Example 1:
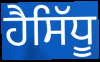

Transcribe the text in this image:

ਹੈਸਿੱਧੂ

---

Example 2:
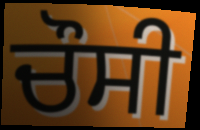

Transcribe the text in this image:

ਚੌਸੀ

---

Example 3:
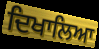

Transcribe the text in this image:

ਦਿਖਾਲਿਆ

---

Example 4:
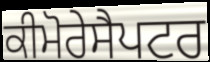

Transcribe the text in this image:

ਕੀਮੋਰੇਸੈਪਟਰ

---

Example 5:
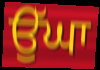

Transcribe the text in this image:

ਉੱਘਾ